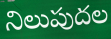
నిలుపుదల